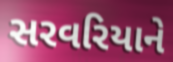
સરવરિયાને